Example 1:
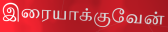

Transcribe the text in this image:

இரையாக்குவேன்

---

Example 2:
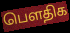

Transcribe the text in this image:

பௌதிக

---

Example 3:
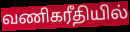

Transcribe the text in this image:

வணிகரீதியில்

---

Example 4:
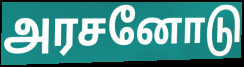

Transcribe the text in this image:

அரசனோடு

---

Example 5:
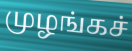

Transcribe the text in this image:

முழங்கச்